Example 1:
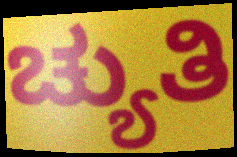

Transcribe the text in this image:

ಚ್ಯುತಿ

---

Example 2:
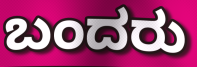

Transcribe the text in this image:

ಬಂದರು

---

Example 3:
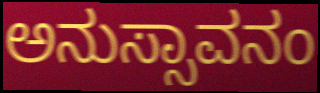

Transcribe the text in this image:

ಅನುಸ್ಸಾವನಂ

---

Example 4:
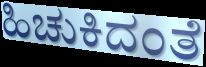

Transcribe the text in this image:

ಹಿಚುಕಿದಂತೆ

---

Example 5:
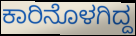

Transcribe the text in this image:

ಕಾರಿನೊಳಗಿದ್ದ